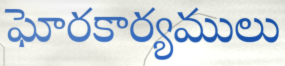
ఘోరకార్యములు